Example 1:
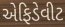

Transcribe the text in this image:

એફિડેવીટ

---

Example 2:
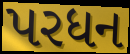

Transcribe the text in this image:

પરધન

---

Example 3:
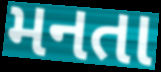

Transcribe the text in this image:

મનતા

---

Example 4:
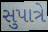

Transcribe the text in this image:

સુપાત્રે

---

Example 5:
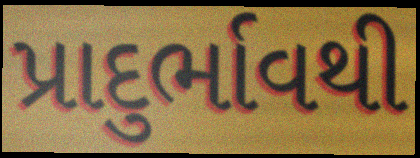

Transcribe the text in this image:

પ્રાદુર્ભાવથી